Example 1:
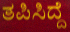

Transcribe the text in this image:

ತಪಿಸಿದ್ದೆ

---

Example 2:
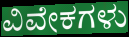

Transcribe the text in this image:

ವಿವೇಕಗಳು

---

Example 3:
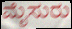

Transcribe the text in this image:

ಮೈಸುರು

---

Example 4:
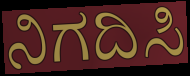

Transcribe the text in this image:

ನಿಗದಿಸಿ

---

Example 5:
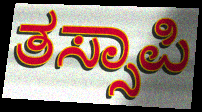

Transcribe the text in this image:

ತಸ್ಸಾಪಿ